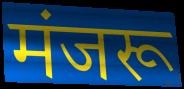
मंजरू